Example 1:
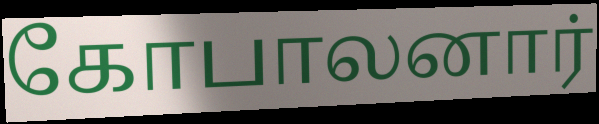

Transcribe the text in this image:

கோபாலனார்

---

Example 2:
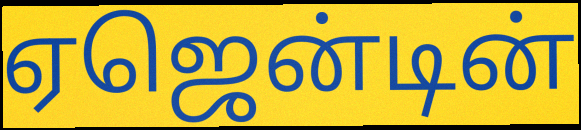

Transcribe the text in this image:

ஏஜென்டின்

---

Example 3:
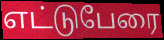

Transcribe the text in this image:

எட்டுபேரை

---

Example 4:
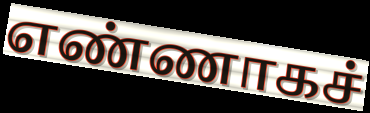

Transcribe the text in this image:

எண்ணாகச்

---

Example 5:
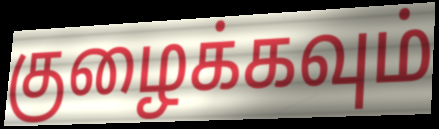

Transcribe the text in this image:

குழைக்கவும்